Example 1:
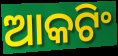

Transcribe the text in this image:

ଆକଟିଂ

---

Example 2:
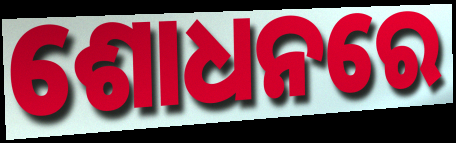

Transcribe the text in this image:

ଶୋଧନରେ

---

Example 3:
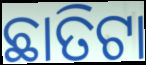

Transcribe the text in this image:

ଛାତିଟା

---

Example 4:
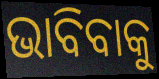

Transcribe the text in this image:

ଭାବିବାକୁ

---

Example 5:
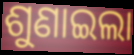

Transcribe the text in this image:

ଶୁଣାଇଲା